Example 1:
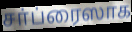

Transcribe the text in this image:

சர்ப்ரைஸாக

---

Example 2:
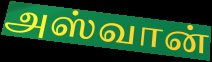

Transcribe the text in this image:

அஸ்வான்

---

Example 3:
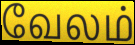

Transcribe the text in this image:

வேலம்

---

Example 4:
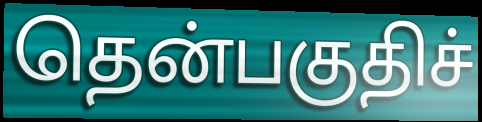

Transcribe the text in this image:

தென்பகுதிச்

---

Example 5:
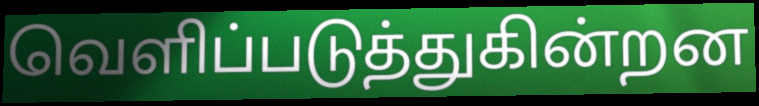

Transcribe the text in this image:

வெளிப்படுத்துகின்றன